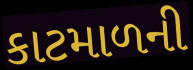
કાટમાળની